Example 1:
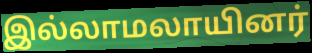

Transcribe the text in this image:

இல்லாமலாயினர்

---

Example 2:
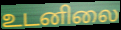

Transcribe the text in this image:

உடனிலை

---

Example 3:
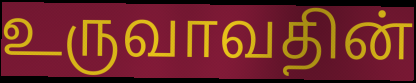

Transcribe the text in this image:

உருவாவதின்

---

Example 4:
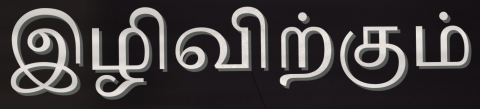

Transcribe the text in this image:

இழிவிற்கும்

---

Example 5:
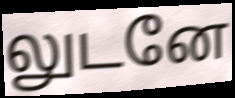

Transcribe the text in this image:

லுடனே